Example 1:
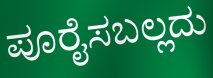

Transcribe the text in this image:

ಪೂರೈಸಬಲ್ಲದು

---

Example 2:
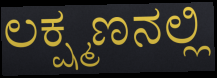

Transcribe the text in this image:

ಲಕ್ಷ್ಮಣನಲ್ಲಿ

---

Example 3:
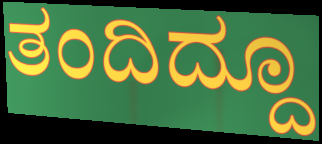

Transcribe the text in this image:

ತಂದಿದ್ದೂ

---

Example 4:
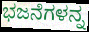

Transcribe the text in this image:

ಭಜನೆಗಳನ್ನ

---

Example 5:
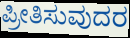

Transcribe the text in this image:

ಪ್ರೀತಿಸುವುದರ